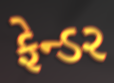
ફેન્ડર